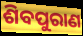
ଶିବପୁରାଣ